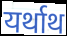
यर्थाथ